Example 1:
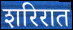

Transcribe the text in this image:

शरिरात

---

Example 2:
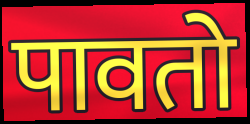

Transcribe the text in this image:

पावतो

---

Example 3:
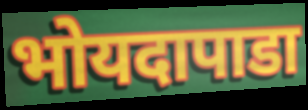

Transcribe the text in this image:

भोयदापाडा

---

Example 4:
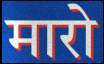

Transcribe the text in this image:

मारो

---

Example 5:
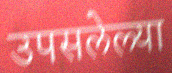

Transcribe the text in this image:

उपसलेल्या